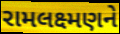
રામલક્ષ્મણને